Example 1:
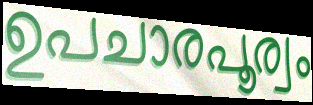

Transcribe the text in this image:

ഉപചാരപൂര്വം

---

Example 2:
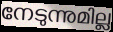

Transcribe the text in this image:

നേടുന്നുമില്ല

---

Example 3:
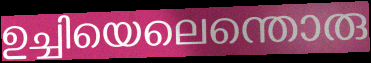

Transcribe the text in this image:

ഉച്ചിയെലെന്തൊരു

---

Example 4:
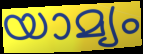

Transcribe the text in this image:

യാമ്യം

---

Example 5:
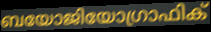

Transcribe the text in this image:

ബയോജിയോഗ്രാഫിക്